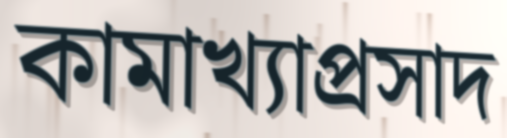
কামাখ্যাপ্রসাদ